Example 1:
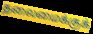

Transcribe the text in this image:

தலைமைக்குக்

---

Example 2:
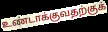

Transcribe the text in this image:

உண்டாக்குவதற்குக்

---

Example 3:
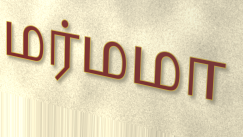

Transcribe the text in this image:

மர்மமா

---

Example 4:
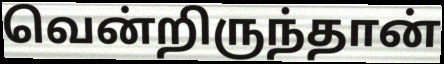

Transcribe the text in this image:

வென்றிருந்தான்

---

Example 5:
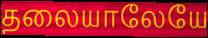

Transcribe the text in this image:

தலையாலேயே